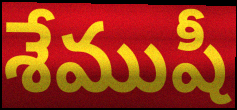
శేముషీ